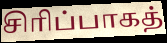
சிரிப்பாகத்